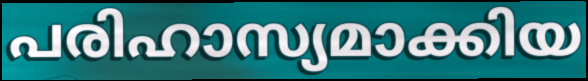
പരിഹാസ്യമാക്കിയ